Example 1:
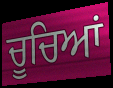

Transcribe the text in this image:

ਚੂਚਿਆਂ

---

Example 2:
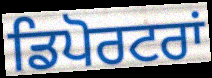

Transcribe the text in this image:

ਡਿਪੋਰਟਰਾਂ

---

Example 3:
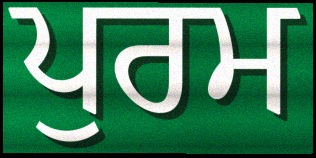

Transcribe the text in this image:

ਪੁਰਮ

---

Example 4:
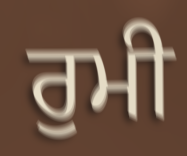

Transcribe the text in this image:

ਰੁਮੀ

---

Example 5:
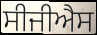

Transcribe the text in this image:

ਸੀਜੀਐਸ